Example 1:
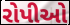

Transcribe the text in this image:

રોપીઓ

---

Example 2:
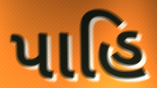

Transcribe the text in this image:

પાહિ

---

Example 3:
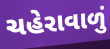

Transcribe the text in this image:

ચહેરાવાળું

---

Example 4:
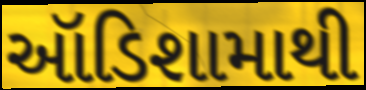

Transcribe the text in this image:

ઑડિશામાથી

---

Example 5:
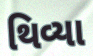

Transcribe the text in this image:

થિવ્યા